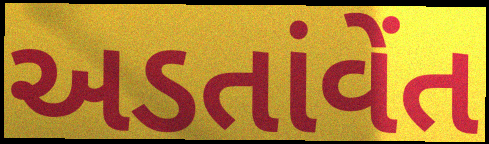
અડતાંવેંત